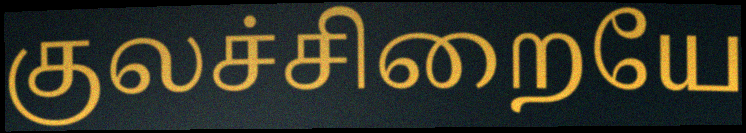
குலச்சிறையே